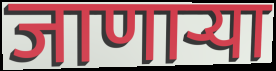
जाणाऱ्या